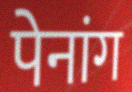
पेनांग